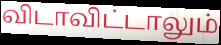
விடாவிட்டாலும்